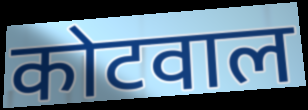
कोटवाल